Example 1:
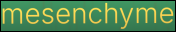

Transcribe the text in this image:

mesenchyme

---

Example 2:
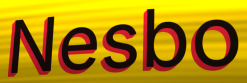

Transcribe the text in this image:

Nesbo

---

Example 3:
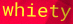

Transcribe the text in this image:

whiety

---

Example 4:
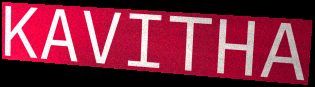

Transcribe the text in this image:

KAVITHA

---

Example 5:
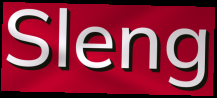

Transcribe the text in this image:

Sleng